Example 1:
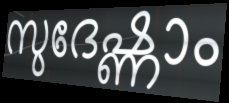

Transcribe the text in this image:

സുദേഷ്ണാം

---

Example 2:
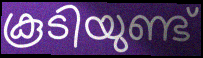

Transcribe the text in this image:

കൂടിയുണ്ട്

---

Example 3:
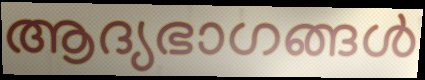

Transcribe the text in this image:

ആദ്യഭാഗങ്ങൾ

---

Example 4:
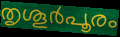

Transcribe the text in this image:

തൃശൂർപൂരം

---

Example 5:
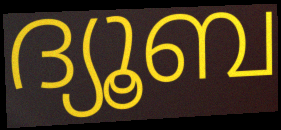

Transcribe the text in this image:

ദ്യൂബ